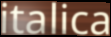
italica